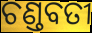
ଚଣ୍ଡବତୀ